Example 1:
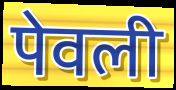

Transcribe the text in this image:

पेवली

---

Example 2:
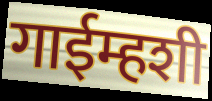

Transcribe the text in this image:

गाईम्हशी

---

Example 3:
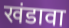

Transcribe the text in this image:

खंडावा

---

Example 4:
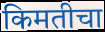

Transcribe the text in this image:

किमतीचा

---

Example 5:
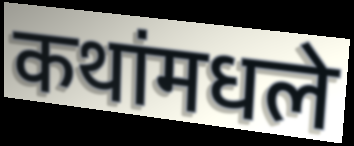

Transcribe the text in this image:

कथांमधले